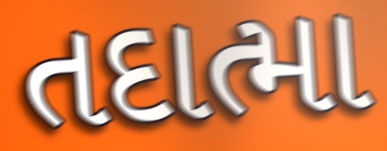
તદાત્મા